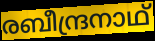
രബീന്ദ്രനാഥ്